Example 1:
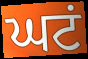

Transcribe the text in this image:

ਘਟਂ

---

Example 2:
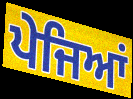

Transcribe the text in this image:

ਪੇਜਿਆਂ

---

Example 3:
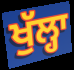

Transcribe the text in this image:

ਖੁੱਲ੍ਹਾ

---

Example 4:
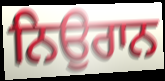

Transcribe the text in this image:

ਨਿਉਰਾਨ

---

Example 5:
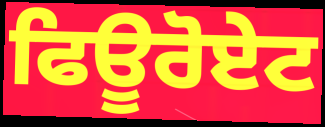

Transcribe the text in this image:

ਫਿਊਰੋਏਟ